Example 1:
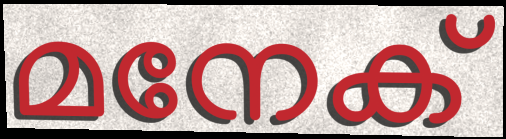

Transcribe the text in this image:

മനേക്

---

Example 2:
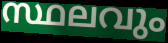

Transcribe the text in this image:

സ്ഥലവും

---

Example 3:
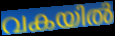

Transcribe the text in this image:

വകയിൽ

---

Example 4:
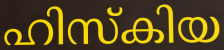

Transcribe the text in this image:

ഹിസ്കിയ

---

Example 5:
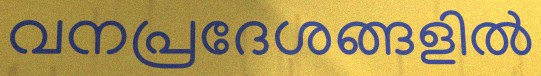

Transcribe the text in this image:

വനപ്രദേശങ്ങളിൽ